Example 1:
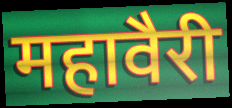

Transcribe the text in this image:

महावैरी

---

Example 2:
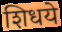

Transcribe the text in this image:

शिधये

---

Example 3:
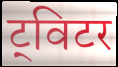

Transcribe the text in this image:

ट्‌विटर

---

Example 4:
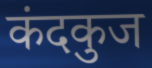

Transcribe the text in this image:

कंदकुज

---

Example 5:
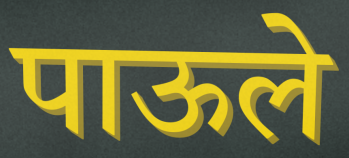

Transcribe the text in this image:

पाऊले